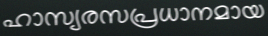
ഹാസ്യരസപ്രധാനമായ